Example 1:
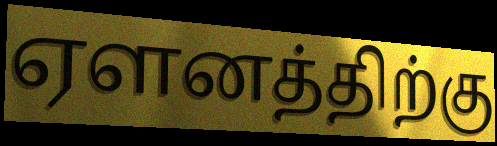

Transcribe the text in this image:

ஏளனத்திற்கு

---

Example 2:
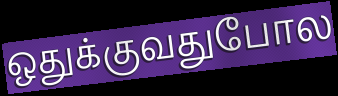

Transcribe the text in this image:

ஒதுக்குவதுபோல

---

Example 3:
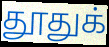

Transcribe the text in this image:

தூதுக்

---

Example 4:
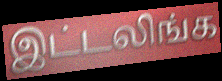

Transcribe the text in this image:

இட்டலிங்க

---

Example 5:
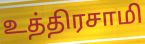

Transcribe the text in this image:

உத்திரசாமி